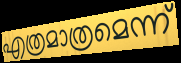
എത്രമാത്രമെന്ന്